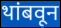
थांबवून